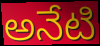
అనేటి